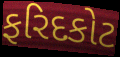
ફરિદકોટ